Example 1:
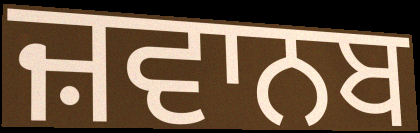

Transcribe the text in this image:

ਜ਼ਵਾਨਬ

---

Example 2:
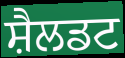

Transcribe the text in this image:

ਸ਼ੈਲਡਟ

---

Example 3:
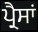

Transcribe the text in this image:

ਪ੍ਰੈਸਾਂ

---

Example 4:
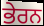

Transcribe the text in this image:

ਭੇਰਨ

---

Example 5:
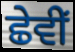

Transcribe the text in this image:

ਛੇਵੀਂ